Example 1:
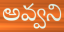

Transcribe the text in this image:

అవ్వని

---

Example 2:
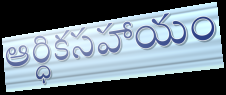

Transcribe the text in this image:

ఆర్ధికసహాయం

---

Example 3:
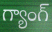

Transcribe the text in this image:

గ్యాంగ్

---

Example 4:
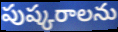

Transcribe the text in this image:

పుష్కరాలను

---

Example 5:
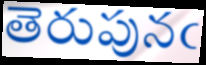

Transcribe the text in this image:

తెరుపునఁ